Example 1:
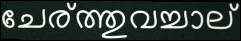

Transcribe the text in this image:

ചേര്ത്തുവച്ചാല്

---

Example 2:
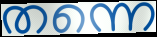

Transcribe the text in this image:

തന്നെ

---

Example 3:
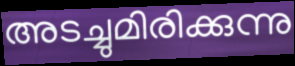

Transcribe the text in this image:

അടച്ചുമിരിക്കുന്നു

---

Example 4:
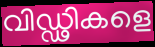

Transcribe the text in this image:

വിഡ്ഢികളെ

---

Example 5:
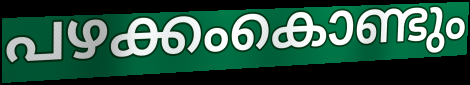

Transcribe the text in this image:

പഴക്കംകൊണ്ടും